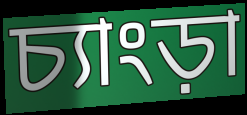
চ্যাংড়া